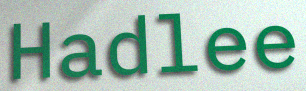
Hadlee